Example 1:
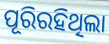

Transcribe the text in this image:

ପୂରିରହିଥିଲା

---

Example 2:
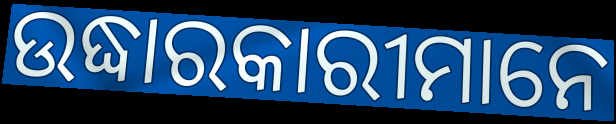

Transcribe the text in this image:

ଉଦ୍ଧାରକାରୀମାନେ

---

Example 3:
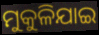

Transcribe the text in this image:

ମୁକୁଳିଯାଇ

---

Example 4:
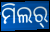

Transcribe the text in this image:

ମିଲର୍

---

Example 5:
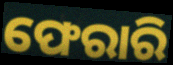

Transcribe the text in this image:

ଫେରାରି